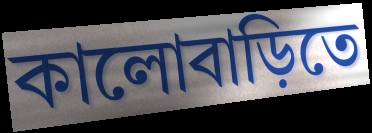
কালোবাড়িতে